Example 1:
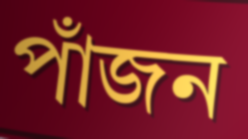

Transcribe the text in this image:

পাঁজন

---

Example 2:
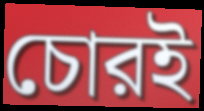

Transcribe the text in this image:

চোরই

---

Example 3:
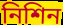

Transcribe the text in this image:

নিশিন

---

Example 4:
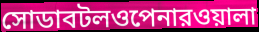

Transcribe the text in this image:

সোডাবটলওপেনারওয়ালা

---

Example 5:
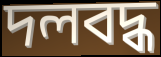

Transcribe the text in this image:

দলবদ্ধ